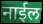
नाईल